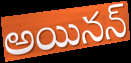
అయినన్